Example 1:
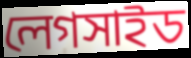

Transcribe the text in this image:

লেগসাইড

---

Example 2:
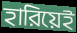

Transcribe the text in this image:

হারিয়েই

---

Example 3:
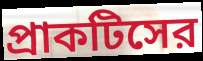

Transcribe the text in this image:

প্রাকটিসের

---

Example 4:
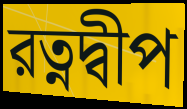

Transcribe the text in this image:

রত্নদ্বীপ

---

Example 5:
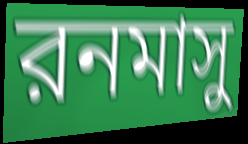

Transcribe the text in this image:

রনমাসু